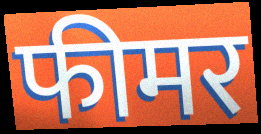
फीमर